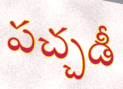
పచ్చడీ